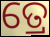
ତ୍ରେ